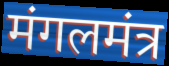
मंगलमंत्र